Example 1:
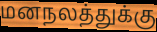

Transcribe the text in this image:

மனநலத்துக்கு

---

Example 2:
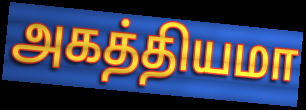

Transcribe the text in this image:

அகத்தியமா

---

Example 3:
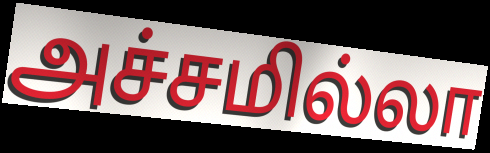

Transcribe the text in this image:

அச்சமில்லா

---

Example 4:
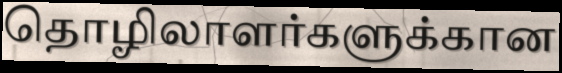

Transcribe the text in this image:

தொழிலாளர்களுக்கான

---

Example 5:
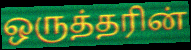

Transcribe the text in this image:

ஒருத்தரின்